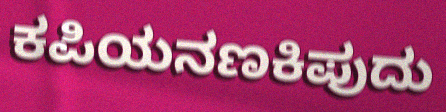
ಕಪಿಯನಣಕಿಪುದು